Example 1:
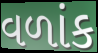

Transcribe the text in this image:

વળાંક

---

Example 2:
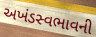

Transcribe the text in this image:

અખંડસ્વભાવની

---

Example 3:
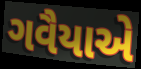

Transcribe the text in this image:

ગવૈયાએ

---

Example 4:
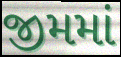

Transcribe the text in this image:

જીમમાં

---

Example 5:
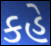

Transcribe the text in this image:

કહે